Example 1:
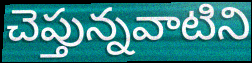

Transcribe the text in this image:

చెప్తున్నవాటిని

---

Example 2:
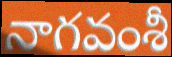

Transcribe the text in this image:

నాగవంశీ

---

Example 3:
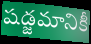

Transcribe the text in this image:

షడ్జమానికీ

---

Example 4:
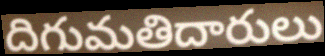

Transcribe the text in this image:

దిగుమతిదారులు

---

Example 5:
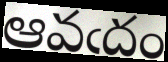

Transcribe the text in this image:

ఆవఁదం